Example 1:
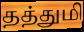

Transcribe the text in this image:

தத்துமி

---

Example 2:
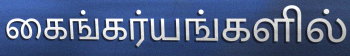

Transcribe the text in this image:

கைங்கர்யங்களில்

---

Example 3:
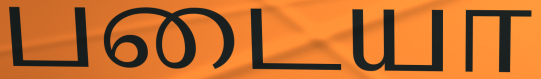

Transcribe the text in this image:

படையா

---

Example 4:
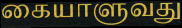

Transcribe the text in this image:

கையாளுவது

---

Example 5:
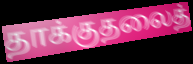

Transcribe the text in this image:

தாக்குதலைத்